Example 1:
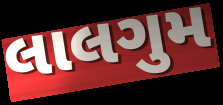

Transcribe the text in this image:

લાલગુમ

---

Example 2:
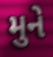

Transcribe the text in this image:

મુને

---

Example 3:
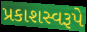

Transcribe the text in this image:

પ્રકાશસ્વરૂપે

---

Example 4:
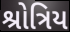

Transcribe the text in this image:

શ્રોત્રિય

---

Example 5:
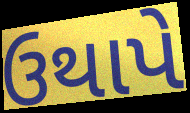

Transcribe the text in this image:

ઉથાપે